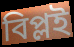
বিপ্লই